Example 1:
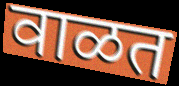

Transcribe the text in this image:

वाळत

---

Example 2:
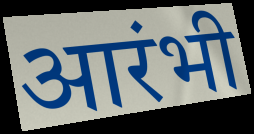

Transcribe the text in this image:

आरंभी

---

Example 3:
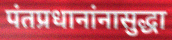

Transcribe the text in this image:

पंतप्रधानांनासुद्धा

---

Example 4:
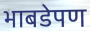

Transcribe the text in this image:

भाबडेपण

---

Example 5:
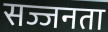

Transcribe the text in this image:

सज्जनता